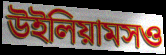
উইলিয়ামসও